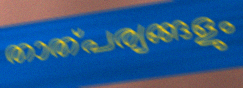
താത്പര്യങ്ങളും